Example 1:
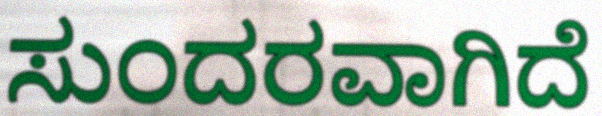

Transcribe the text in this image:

ಸುಂದರವಾಗಿದೆ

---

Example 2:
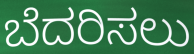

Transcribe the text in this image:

ಬೆದರಿಸಲು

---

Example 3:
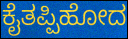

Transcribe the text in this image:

ಕೈತಪ್ಪಿಹೋದ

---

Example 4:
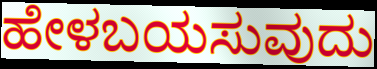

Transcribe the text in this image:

ಹೇಳಬಯಸುವುದು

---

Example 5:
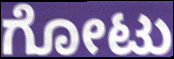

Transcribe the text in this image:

ಗೋಟು